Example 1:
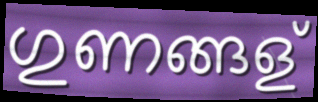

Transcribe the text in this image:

ഗുണങ്ങള്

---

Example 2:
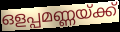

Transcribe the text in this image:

ഒളപ്പമണ്ണയ്ക്ക്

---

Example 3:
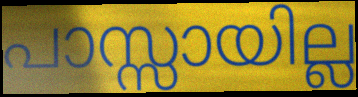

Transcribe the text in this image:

പാസ്സായില്ല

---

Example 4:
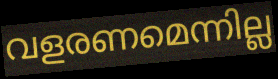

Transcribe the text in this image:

വളരണമെന്നില്ല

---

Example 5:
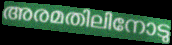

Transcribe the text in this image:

അരമതിലിനോടു